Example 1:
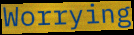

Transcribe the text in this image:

Worrying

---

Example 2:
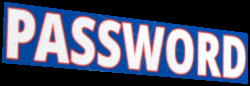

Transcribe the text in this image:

PASSWORD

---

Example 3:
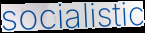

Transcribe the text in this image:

socialistic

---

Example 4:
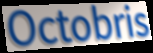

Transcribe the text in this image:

Octobris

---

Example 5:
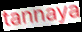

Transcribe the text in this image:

tannaya